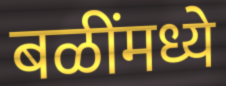
बळींमध्ये